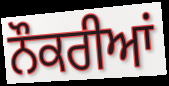
ਨੌਕਰੀਆਂ